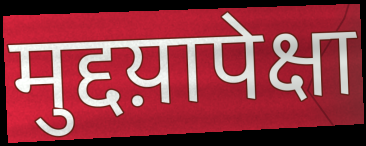
मुद्दय़ापेक्षा